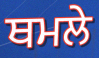
ਥਮਲੇ